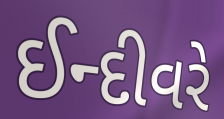
ઈન્દીવરે